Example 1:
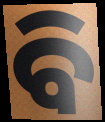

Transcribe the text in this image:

ବି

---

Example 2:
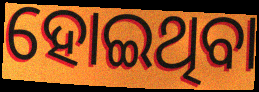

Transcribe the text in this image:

ହୋଇଥିବା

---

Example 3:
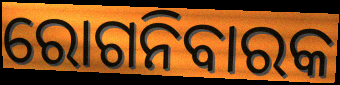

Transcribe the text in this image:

ରୋଗନିବାରକ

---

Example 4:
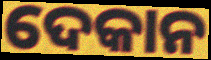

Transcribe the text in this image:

ଦେକାନ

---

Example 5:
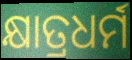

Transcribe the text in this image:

କ୍ଷାତ୍ରଧର୍ମ